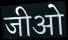
जीओ